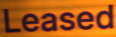
Leased